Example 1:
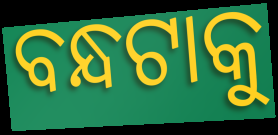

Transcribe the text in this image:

ବନ୍ଧଟାକୁ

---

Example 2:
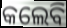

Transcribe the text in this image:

କଲେବି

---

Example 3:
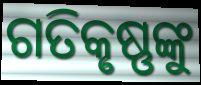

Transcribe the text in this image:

ଗତିକୃଷ୍ଣଙ୍କୁ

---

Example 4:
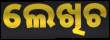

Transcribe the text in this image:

ଲେଖିଚ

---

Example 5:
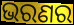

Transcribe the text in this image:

ଭରଣର